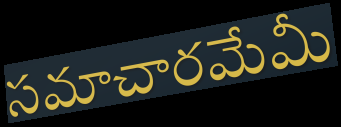
సమాచారమేమీ